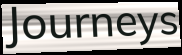
Journeys